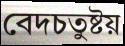
বেদচতুষ্টয়